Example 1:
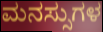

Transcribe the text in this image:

ಮನಸ್ಸುಗಳ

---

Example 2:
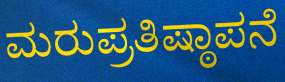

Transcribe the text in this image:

ಮರುಪ್ರತಿಷ್ಠಾಪನೆ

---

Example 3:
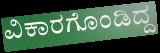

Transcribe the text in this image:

ವಿಕಾರಗೊಂಡಿದ್ದ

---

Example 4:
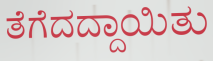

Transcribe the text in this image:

ತೆಗೆದದ್ದಾಯಿತು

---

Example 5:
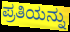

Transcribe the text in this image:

ಪ್ರತಿಯನ್ನು